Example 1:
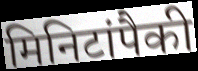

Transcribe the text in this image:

मिनिटांपैकी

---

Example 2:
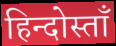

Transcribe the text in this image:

हिन्दोस्ताँ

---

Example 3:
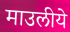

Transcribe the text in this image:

माउलीये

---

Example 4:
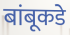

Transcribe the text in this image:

बांबूकडे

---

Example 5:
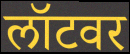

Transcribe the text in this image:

लॉटवर